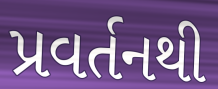
પ્રવર્તનથી